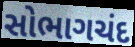
સોભાગચંદ